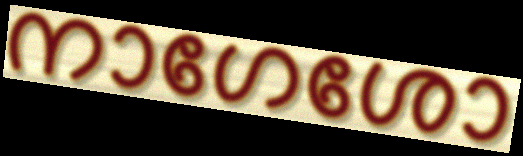
നാഗേശോ